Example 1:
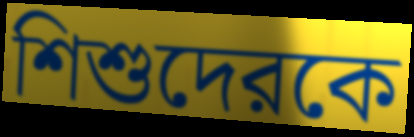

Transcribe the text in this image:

শিশুদেরকে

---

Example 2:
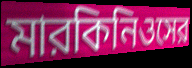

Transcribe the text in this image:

মারকিনিওসের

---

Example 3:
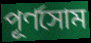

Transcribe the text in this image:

পূর্ণসোম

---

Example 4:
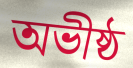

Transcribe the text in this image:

অভীষ্ঠ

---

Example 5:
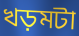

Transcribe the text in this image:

খড়মটা